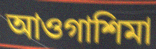
আওগাশিমা